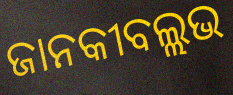
ଜାନକୀବଲ୍ଲଭ